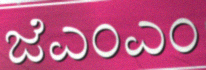
ಜೆಎಂಎಂ